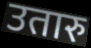
उतारु